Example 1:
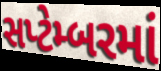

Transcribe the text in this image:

સપ્ટેમ્બરમાં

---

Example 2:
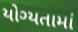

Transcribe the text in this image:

યોગ્યતામાં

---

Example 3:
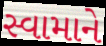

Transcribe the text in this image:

સ્વામાને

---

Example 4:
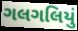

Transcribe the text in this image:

ગલગલિયું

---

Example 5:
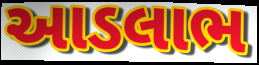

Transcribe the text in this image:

આડલાભ